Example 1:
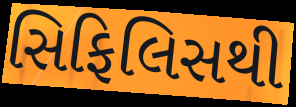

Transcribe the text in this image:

સિફિલિસથી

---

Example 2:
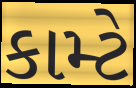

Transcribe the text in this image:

કામ્ટે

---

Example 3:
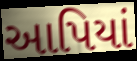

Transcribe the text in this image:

આપિયાં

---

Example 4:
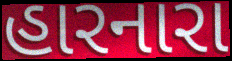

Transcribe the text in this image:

હારનારા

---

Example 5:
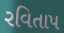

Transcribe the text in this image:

રવિતાપ